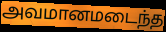
அவமானமடைந்த